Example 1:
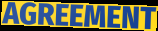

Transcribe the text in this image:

AGREEMENT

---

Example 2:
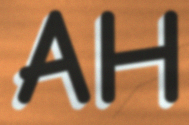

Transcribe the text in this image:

AH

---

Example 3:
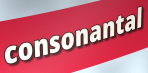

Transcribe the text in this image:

consonantal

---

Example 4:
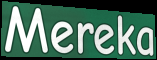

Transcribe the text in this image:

Mereka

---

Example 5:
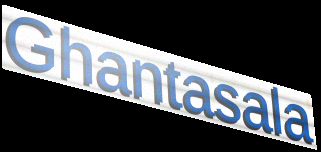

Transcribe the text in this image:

Ghantasala